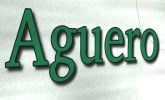
Aguero